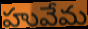
హువేమ